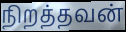
நிறத்தவன்